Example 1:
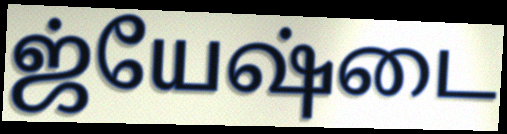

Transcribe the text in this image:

ஜ்யேஷ்டை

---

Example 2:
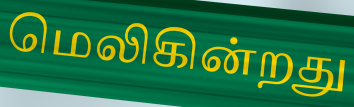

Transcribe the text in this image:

மெலிகின்றது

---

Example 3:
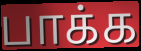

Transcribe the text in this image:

பாக்க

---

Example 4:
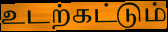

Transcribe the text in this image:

உடற்கட்டும்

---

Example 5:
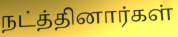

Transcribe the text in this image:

நட்த்தினார்கள்